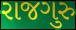
રાજગુરુ